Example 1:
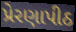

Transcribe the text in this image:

પ્રેરણાપીઠ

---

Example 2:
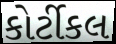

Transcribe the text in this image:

કોર્ટીકલ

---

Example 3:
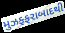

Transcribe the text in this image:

મુઝફ્ફરાબાદથી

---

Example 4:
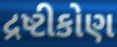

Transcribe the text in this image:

દ્રષ્ટીકોણ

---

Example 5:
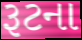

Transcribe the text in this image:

રૂટના